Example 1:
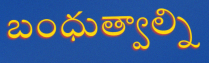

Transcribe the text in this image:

బంధుత్వాల్ని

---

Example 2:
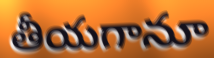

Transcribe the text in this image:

తీయగానూ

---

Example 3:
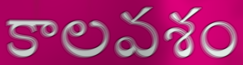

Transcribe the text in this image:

కాలవశం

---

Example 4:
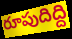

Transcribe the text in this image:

రూపుదిద్ది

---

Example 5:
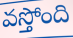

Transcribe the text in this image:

వస్తోంది